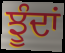
ਝੂੰਦਾਂ